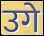
उगे